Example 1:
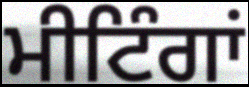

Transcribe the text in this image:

ਮੀਟਿੰਗਾਂ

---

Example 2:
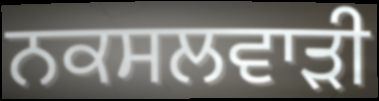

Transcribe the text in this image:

ਨਕਸਲਵਾੜੀ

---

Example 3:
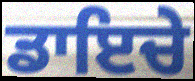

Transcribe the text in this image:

ਡਾਇਚੇ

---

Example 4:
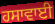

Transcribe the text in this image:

ਹਸਾਵਾਈ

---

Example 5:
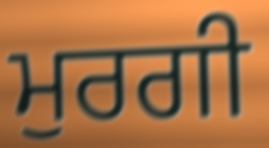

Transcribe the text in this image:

ਮੁਰਗੀ